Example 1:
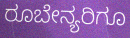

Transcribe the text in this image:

ರೂಬೇನ್ಯರಿಗೂ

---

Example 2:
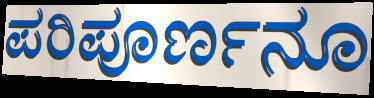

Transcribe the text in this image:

ಪರಿಪೂರ್ಣನೂ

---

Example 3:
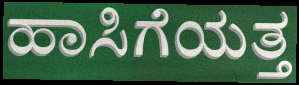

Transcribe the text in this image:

ಹಾಸಿಗೆಯತ್ತ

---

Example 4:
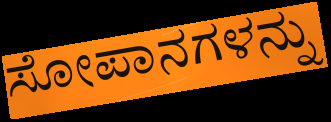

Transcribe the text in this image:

ಸೋಪಾನಗಳನ್ನು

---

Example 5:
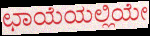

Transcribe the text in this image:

ಛಾಯೆಯಲ್ಲಿಯೇ